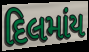
દિલમાંય